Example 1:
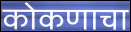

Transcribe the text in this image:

कोकणाचा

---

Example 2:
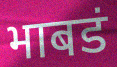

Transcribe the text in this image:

भाबडं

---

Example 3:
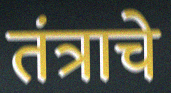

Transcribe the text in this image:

तंत्राचे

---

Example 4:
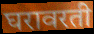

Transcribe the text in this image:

घरावरती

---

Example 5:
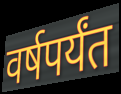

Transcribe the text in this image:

वर्षपर्यंत